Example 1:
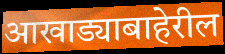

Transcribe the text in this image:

आखाड्याबाहेरील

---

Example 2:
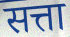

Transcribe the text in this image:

सत्ता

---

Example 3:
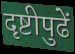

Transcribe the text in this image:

दृष्टीपुढें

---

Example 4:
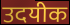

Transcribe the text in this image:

उदयीक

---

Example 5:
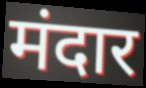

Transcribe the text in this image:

मंदार